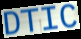
DTIC